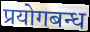
प्रयोगबन्ध